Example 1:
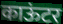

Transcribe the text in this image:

काऊंटर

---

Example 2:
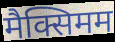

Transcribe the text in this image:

मैक्सिमम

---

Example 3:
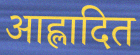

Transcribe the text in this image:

आह्लादित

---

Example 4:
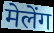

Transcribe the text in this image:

मेलेंग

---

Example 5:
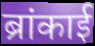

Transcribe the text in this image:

ब्रांकाई